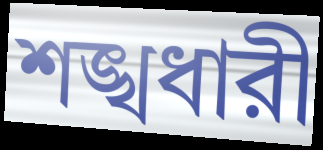
শঙ্খধারী